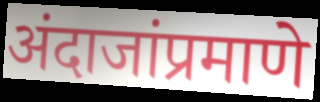
अंदाजांप्रमाणे